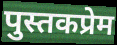
पुस्तकप्रेम